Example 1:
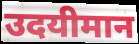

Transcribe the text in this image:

उदयीमान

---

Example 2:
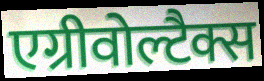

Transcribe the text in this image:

एग्रीवोल्टैक्स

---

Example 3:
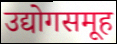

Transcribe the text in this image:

उद्योगसमूह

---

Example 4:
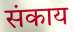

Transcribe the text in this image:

संकाय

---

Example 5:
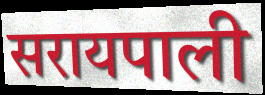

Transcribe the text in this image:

सरायपाली